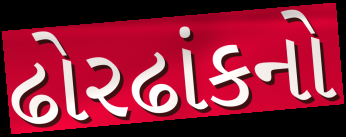
ઢોરઢાંકનો